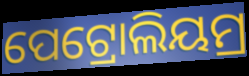
ପେଟ୍ରୋଲିୟମ୍ର